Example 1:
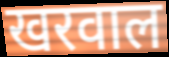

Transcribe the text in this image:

खरवाल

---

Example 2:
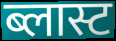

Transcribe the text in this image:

ब्लास्ट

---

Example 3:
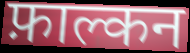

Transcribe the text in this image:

फ़ाल्कन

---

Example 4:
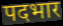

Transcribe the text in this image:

पदभार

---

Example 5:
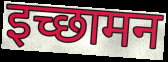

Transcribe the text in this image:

इच्छामन